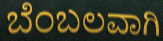
ಬೆಂಬಲವಾಗಿ